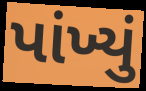
પાંખ્યું